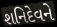
શનિદેવને